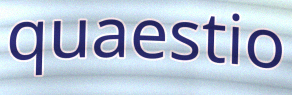
quaestio